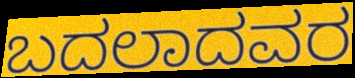
ಬದಲಾದವರ